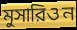
মুসারিওন